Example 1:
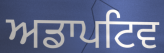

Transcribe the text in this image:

ਅਡਾਪਟਿਵ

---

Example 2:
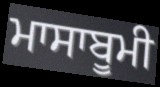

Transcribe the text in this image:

ਮਾਸਾਬੂਮੀ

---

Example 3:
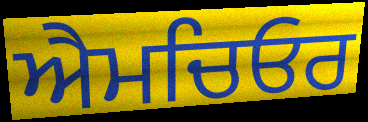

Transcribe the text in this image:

ਐਮਚਿਓਰ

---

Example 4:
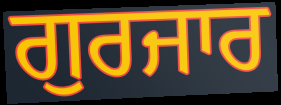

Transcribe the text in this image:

ਗੁਰਜਾਰ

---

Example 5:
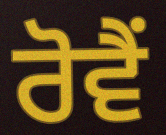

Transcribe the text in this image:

ਰੋਵੈਂ